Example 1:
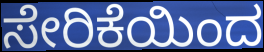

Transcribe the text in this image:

ಸೇರಿಕೆಯಿಂದ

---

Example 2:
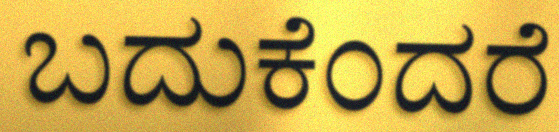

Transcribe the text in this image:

ಬದುಕೆಂದರೆ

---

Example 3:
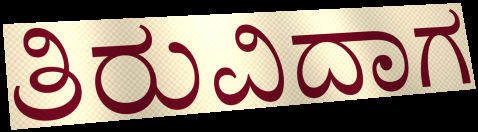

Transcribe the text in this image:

ತಿರುವಿದಾಗ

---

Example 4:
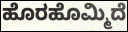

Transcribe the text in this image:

ಹೊರಹೊಮ್ಮಿದೆ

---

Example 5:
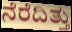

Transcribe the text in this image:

ನೆರೆದಿತ್ತು